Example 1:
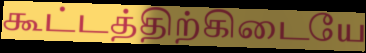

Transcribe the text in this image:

கூட்டத்திற்கிடையே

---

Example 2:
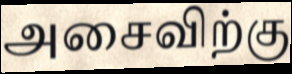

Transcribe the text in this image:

அசைவிற்கு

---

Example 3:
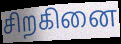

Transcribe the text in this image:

சிறகினை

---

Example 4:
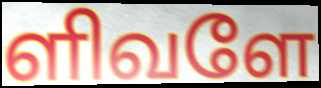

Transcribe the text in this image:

ளிவளே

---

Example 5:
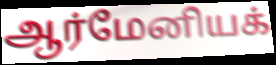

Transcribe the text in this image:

ஆர்மேனியக்